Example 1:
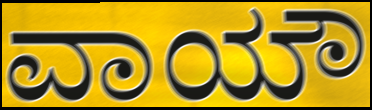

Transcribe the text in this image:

ವಾಯೌ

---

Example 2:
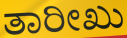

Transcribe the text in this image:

ತಾರೀಖು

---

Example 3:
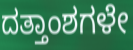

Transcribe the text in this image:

ದತ್ತಾಂಶಗಳೇ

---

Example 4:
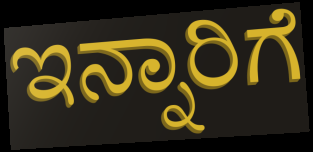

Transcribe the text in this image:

ಇನ್ನಾರಿಗೆ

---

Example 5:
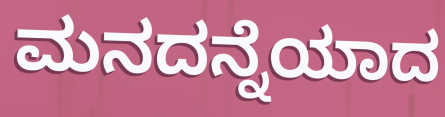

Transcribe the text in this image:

ಮನದನ್ನೆಯಾದ